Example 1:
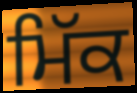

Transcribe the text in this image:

ਮਿੱਕ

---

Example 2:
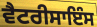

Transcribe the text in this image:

ਵੈਟਰੀਸਾਇੰਸ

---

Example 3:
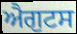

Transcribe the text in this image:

ਐਗੁਟਸ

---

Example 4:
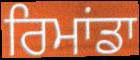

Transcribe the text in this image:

ਰਿਮਾਂਡਾ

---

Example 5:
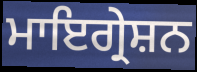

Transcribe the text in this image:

ਮਾਇਗ੍ਰੇਸ਼ਨ